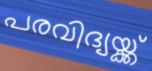
പരവിദ്യയ്ക്ക്